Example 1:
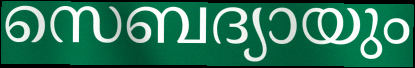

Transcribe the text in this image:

സെബദ്യായും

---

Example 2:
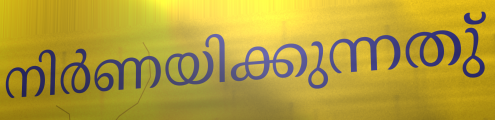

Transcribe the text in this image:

നിർണയിക്കുന്നതു്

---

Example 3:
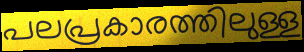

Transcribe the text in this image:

പലപ്രകാരത്തിലുള്ള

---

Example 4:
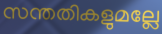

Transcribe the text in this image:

സന്തതികളുമല്ലേ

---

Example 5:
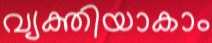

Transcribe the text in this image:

വ്യക്തിയാകാം